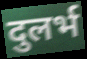
दुलर्भ